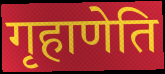
गृहाणेति